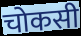
चोकसी